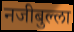
नजीबुल्ला